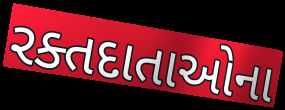
રક્તદાતાઓના